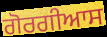
ਗੋਰਗੀਆਸ